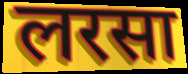
लरसा